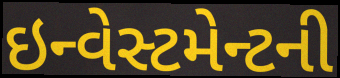
ઇન્વેસ્ટમેન્ટની